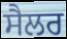
ਸੈਲਰ